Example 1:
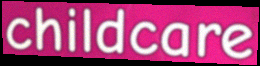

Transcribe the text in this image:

childcare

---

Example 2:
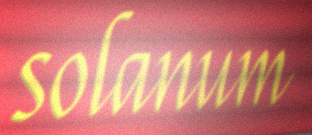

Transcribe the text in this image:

solanum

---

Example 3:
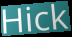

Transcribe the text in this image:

Hick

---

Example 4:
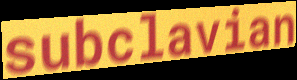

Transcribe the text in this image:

subclavian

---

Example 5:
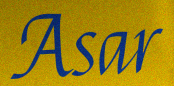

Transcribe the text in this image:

Asar